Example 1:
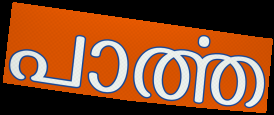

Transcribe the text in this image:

പാൎത്ത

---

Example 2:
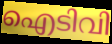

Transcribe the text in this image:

ഐടിവി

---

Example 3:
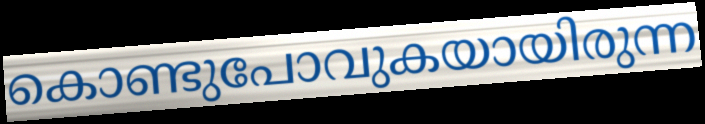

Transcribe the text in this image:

കൊണ്ടുപോവുകയായിരുന്ന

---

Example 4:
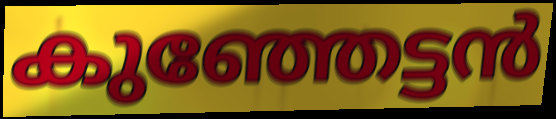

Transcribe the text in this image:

കുഞ്ഞേട്ടൻ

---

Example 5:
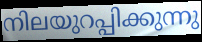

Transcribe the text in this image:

നിലയുറപ്പിക്കുന്നു